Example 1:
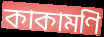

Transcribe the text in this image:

কাকামণি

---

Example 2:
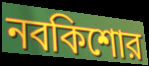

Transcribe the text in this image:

নবকিশোর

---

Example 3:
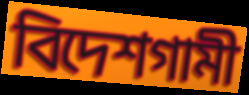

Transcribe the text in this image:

বিদেশগামী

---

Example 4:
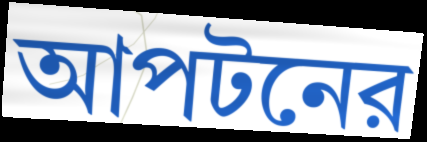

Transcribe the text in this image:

আপটনের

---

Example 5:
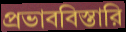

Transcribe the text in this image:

প্রভাববিস্তারি